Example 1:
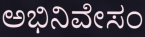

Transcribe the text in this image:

ಅಭಿನಿವೇಸಂ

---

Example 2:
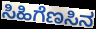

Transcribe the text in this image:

ಸಿಹಿಗೆಣಸಿನ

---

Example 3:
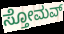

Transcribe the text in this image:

ಸ್ತೋಮವ್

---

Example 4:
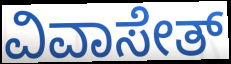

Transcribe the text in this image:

ವಿವಾಸೇತ್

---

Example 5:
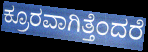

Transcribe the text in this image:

ಕ್ರೂರವಾಗಿತ್ತೆಂದರೆ